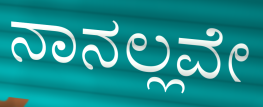
ನಾನಲ್ಲವೇ